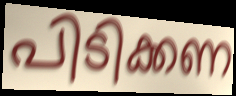
പിടിക്കണ